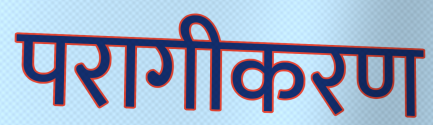
परागीकरण